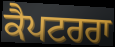
ਕੈਪਟਰਰਾ